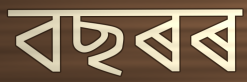
বছৰৰ